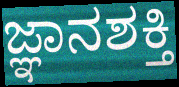
ಜ್ಞಾನಶಕ್ತಿ